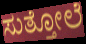
ಸುತ್ತೋಲೆ